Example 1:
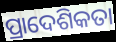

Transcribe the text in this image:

ପ୍ରାଦେଶିକତା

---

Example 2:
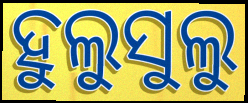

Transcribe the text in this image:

ହୁଲୁସୁଲୁ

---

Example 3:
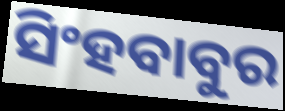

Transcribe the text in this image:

ସିଂହବାବୁର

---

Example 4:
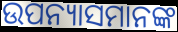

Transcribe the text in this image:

ଉପନ୍ୟାସମାନଙ୍କ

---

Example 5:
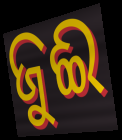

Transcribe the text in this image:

ଜୁଈ